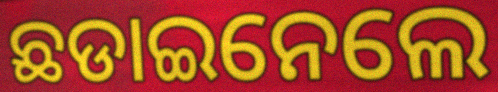
ଛଡାଇନେଲେ